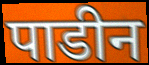
पाडीन